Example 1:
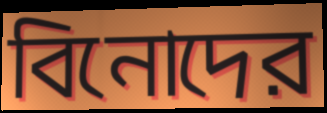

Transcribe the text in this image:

বিনোদের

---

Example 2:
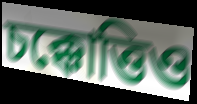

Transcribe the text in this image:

চক্কোত্তিও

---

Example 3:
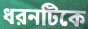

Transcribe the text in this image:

ধরনটিকে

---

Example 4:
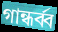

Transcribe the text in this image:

গান্ধর্ব্ব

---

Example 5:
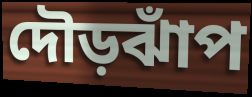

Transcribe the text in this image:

দৌড়ঝাঁপ